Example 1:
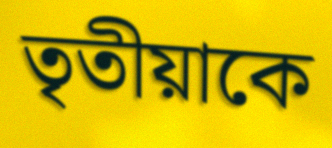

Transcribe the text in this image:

তৃতীয়াকে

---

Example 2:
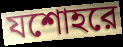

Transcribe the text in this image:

যশোহরে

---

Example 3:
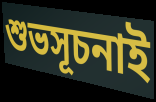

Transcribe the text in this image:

শুভসূচনাই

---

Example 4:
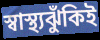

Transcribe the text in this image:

স্বাস্থ্যঝুঁকিই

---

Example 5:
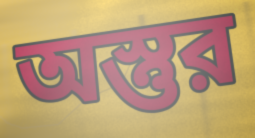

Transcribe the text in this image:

অস্তুর